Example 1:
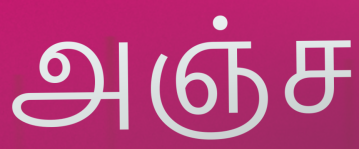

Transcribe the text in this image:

அஞ்ச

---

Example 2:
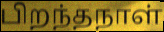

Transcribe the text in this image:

பிறந்தநாள்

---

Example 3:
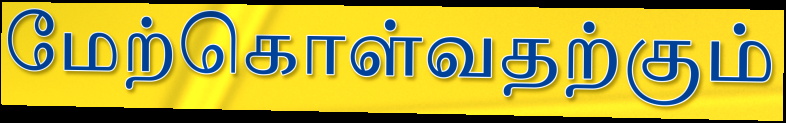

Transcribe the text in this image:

மேற்கொள்வதற்கும்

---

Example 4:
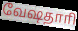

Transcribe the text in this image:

வேஷதாரி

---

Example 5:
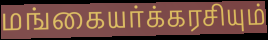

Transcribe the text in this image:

மங்கையர்க்கரசியும்